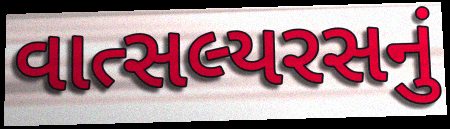
વાત્સલ્યરસનું